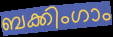
ബക്കിംഗാം